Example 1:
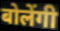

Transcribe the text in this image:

बोलेंगी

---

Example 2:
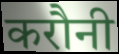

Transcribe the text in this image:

करौनी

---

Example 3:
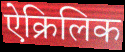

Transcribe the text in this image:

ऐक्रिलिक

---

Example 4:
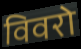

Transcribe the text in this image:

विवरो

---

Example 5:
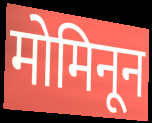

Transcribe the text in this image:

मोमिनून